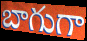
బాగుగా